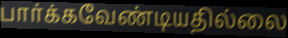
பார்க்கவேண்டியதில்லை